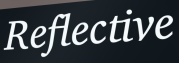
Reflective